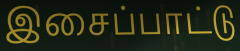
இசைப்பாட்டு